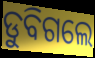
ଡୁବିଗଲେ